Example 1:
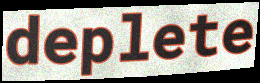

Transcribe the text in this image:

deplete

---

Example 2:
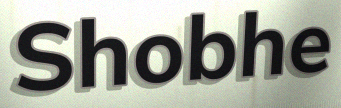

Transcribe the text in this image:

Shobhe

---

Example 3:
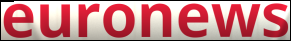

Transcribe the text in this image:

euronews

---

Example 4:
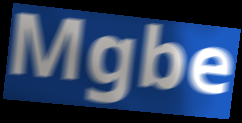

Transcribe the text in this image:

Mgbe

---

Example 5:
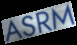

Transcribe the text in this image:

ASRM